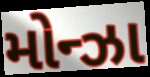
મોન્ઝા